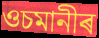
ওচমানীৰ